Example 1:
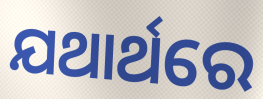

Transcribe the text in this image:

ଯଥାର୍ଥରେ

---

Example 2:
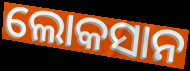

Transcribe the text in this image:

ଲୋକସାନ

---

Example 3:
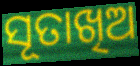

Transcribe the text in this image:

ସୂତାଖିଅ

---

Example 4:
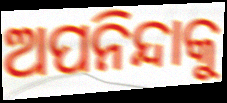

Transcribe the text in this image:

ଅପନିନ୍ଦାକୁ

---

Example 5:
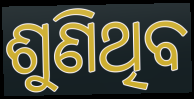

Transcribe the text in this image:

ଶୁଣିଥିବ